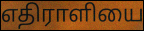
எதிராளியை